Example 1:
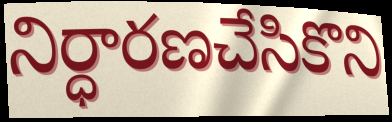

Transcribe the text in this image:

నిర్ధారణచేసికొని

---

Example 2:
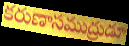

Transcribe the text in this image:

కరుణాసముద్రుడూ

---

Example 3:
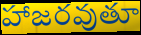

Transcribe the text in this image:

హాజరవుతూ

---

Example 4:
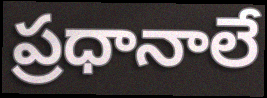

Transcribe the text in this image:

ప్రధానాలే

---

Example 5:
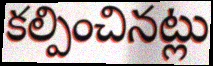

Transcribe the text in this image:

కల్పించినట్లు